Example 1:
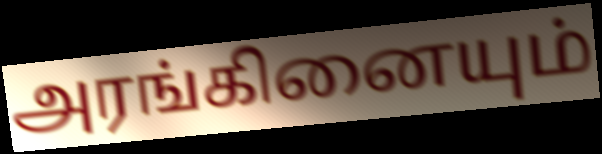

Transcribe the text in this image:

அரங்கினையும்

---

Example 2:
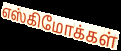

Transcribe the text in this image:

எஸ்கிமோக்கள்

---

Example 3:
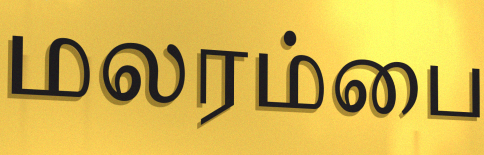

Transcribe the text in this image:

மலரம்பை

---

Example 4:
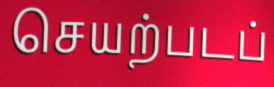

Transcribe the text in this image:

செயற்படப்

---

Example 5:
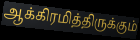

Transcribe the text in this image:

ஆக்கிரமித்திருக்கும்